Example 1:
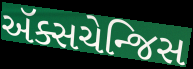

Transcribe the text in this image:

ઍક્સચેન્જિસ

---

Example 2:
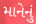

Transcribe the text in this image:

માનેનું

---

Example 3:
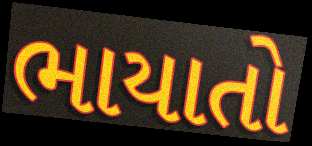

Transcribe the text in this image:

ભાયાતો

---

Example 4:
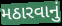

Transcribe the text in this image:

મઠારવાનું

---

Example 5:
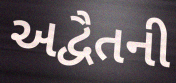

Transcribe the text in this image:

અદ્વૈતની